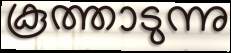
കൂത്താടുന്നു